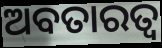
ଅବତାରତ୍ୱ